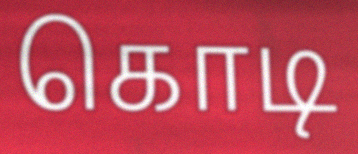
கொடி